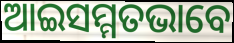
ଆଇସମ୍ମତଭାବେ